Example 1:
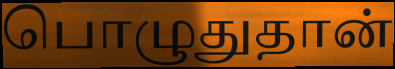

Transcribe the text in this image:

பொழுதுதான்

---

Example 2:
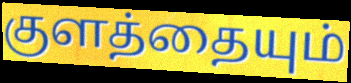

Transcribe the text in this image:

குளத்தையும்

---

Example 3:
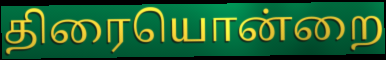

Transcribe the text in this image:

திரையொன்றை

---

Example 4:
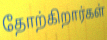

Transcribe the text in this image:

தோற்கிறார்கள்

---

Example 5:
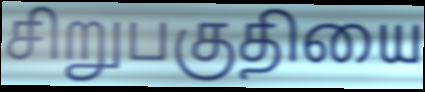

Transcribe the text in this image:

சிறுபகுதியை